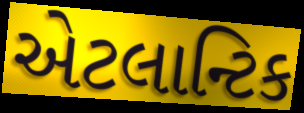
એટલાન્ટિક